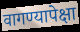
वागण्यापेक्षा